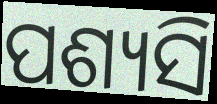
ପଶ୍ୟସି